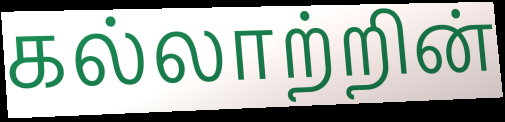
கல்லாற்றின்